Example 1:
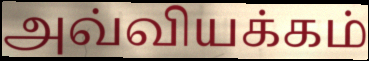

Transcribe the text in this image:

அவ்வியக்கம்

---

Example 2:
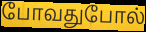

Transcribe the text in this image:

போவதுபோல்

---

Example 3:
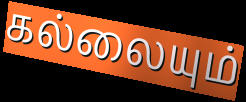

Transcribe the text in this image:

கல்லையும்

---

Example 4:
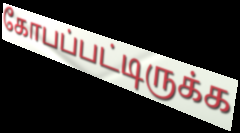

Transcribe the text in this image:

கோபப்பட்டிருக்க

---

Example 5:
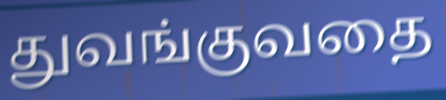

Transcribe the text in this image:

துவங்குவதை